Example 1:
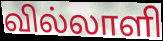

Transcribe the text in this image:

வில்லாளி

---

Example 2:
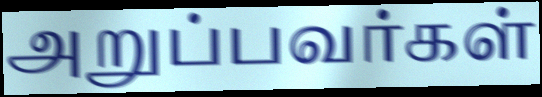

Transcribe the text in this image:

அறுப்பவர்கள்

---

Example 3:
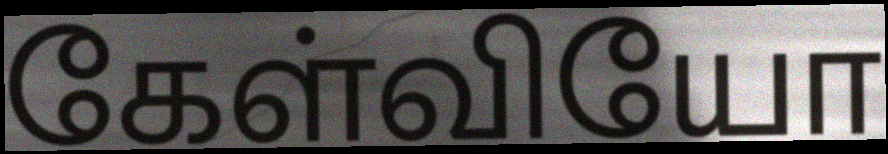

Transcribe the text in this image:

கேள்வியோ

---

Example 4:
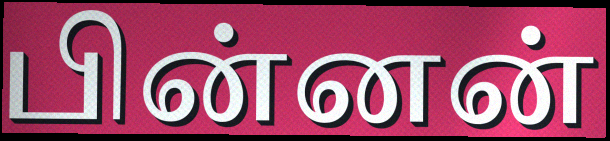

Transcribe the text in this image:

பின்னன்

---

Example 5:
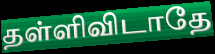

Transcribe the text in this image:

தள்ளிவிடாதே